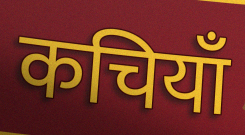
कचियाँ